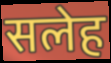
सलेह